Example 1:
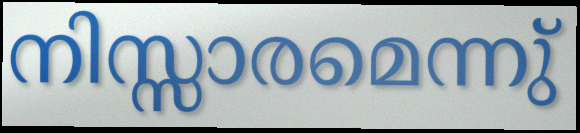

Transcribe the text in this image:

നിസ്സാരമെന്നു്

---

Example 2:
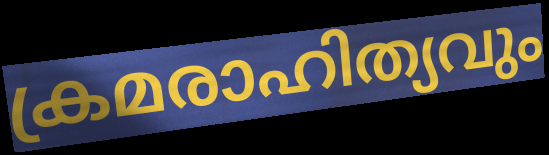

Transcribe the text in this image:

ക്രമരാഹിത്യവും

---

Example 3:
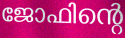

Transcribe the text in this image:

ജോഫിന്റെ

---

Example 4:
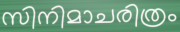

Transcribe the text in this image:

സിനിമാചരിത്രം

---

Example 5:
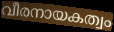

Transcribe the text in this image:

വീരനായകത്വം